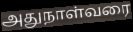
அதுநாள்வரை